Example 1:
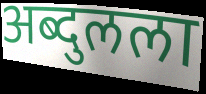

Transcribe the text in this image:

अब्दुलला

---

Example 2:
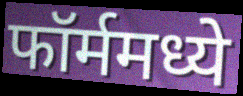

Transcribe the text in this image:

फॉर्ममध्ये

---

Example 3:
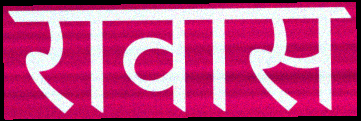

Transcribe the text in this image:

रावास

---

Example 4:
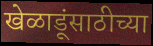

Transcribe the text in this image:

खेळाडूंसाठीच्या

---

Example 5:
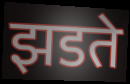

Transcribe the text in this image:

झडते